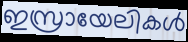
ഇസ്രായേലികൾ